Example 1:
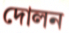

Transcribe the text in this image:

দোলন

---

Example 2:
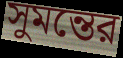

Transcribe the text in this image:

সুমন্তের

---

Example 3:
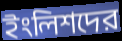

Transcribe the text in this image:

ইংলিশদের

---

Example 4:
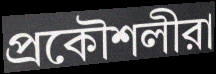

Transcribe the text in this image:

প্রকৌশলীরা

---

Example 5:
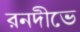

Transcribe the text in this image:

রনদীভে